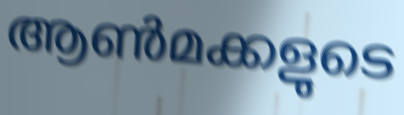
ആൺമക്കളുടെ